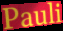
Pauli